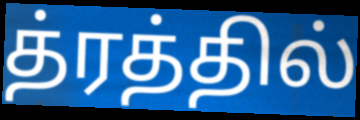
த்ரத்தில்